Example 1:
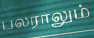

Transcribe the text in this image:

பலராலும்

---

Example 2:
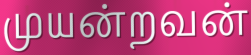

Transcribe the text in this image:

முயன்றவன்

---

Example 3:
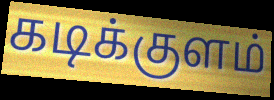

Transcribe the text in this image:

கடிக்குளம்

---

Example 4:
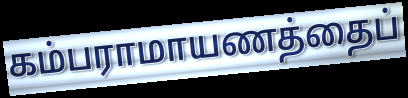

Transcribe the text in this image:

கம்பராமாயணத்தைப்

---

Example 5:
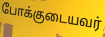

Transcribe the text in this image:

போக்குடையவர்